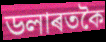
ডলাৰতকৈ